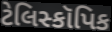
ટેલિસ્કૉપિક